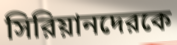
সিরিয়ানদেরকে